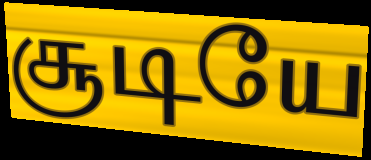
சூடியே